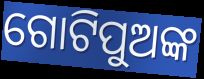
ଗୋଟିପୁଅଙ୍କ